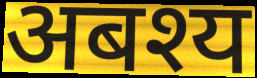
अबश्य